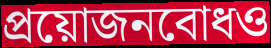
প্রয়োজনবোধও